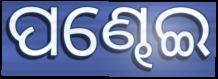
ପଣ୍ଢେଇ